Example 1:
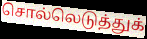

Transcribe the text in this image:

சொல்லெடுத்துக்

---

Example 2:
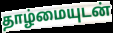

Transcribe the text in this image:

தாழ்மையுடன்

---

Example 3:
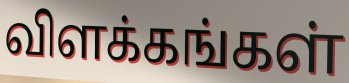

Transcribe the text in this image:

விளக்கங்கள்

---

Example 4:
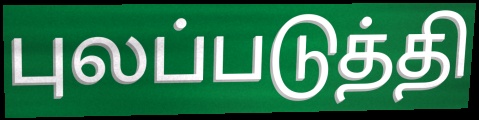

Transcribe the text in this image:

புலப்படுத்தி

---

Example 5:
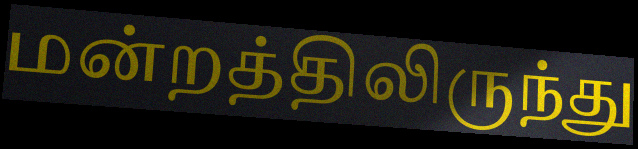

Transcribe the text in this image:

மன்றத்திலிருந்து